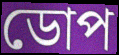
ডোপ